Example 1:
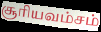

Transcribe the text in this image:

சூரியவம்சம்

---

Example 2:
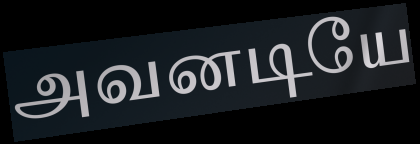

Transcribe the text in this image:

அவனடியே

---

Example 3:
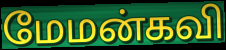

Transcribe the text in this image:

மேமன்கவி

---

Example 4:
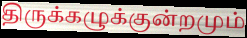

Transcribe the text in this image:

திருக்கழுக்குன்றமும்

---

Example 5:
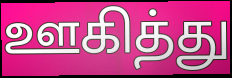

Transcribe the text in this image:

ஊகித்து